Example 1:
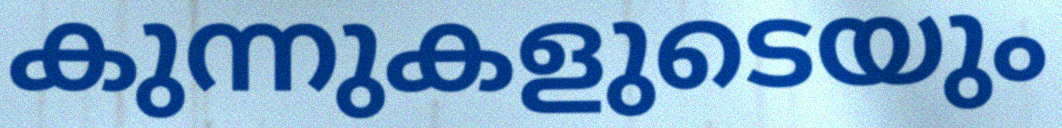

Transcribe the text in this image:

കുന്നുകളുടെയും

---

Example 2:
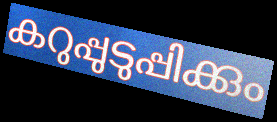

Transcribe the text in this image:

കറുപ്പുടുപ്പിക്കും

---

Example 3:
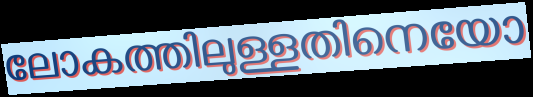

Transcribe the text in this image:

ലോകത്തിലുള്ളതിനെയോ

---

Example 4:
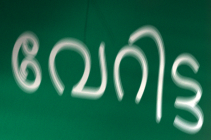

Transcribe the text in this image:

വേറിട്ട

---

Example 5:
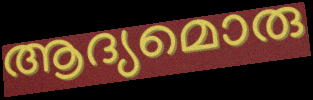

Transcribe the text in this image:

ആദ്യമൊരു